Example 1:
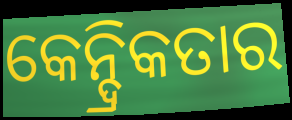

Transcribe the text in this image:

କେନ୍ଦ୍ରିକତାର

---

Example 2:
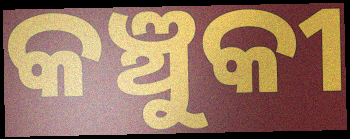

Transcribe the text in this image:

କଞ୍ଚୁକୀ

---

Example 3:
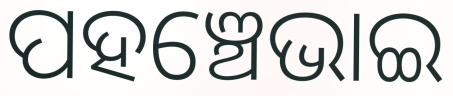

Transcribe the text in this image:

ପହଞ୍ଚେଭାଇ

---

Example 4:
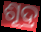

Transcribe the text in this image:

ଶୂଦ୍ର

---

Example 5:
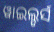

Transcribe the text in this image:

ୱାଇଲ୍ଡର୍ସ